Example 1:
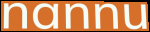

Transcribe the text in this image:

nannu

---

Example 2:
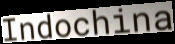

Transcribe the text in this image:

Indochina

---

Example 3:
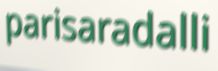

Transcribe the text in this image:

parisaradalli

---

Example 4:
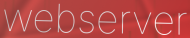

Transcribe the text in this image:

webserver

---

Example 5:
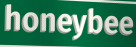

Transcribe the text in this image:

honeybee